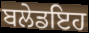
ਬਲੇਡਇਹ